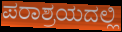
ಪರಾಶ್ರಯದಲ್ಲಿ